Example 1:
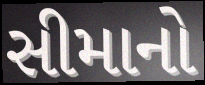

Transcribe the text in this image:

સીમાનો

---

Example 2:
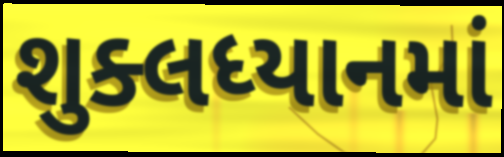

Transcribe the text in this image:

શુક્લધ્યાનમાં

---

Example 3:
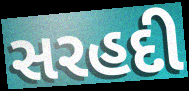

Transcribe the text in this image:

સરહદી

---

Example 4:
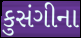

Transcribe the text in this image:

કુસંગીના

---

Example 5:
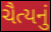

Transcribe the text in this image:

ચૈત્યનું